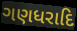
ગણધરાદિ